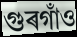
গুৰগাঁও